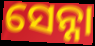
ସେନ୍ନା